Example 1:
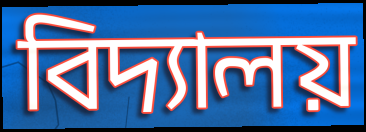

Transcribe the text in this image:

বিদ্যালয়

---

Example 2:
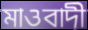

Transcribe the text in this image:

মাওবাদী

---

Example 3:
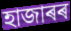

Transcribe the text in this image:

হাজাৰৰ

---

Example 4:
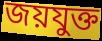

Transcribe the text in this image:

জয়যুক্ত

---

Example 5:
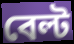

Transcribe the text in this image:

বেল্ট